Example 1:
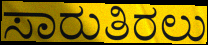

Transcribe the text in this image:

ಸಾರುತಿರಲು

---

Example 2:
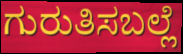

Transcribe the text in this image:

ಗುರುತಿಸಬಲ್ಲೆ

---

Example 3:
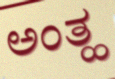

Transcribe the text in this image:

ಅಂತ್ಹ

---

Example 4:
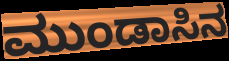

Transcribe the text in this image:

ಮುಂಡಾಸಿನ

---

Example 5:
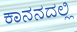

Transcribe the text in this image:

ಕಾನನದಲ್ಲಿ